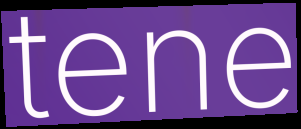
tene